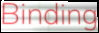
Binding